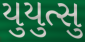
યુયુત્સુ